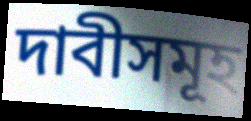
দাবীসমূহ